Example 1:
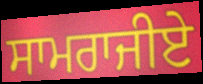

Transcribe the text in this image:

ਸਾਮਰਾਜੀਏ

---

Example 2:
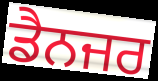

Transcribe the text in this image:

ਡੈਨਜਰ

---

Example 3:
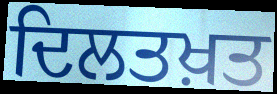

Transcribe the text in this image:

ਦਿਲਤਖ਼ਤ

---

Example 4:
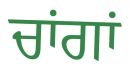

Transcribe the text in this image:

ਚਾਂਗਾਂ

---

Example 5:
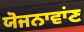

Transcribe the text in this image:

ਯੋਜਨਾਵਾਂਣ